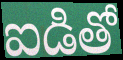
ఐడితో